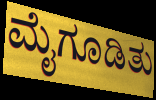
ಮೈಗೂಡಿತು